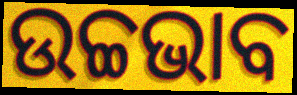
ଉଚ୍ଚଭାବ